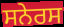
ਸਨੇਰਸ